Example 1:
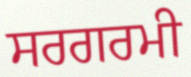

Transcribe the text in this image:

ਸਰਗਰਮੀ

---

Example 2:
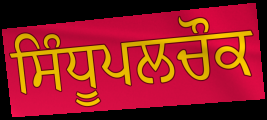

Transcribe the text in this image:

ਸਿੰਧੂਪਲਚੌਕ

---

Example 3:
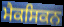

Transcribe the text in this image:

ਮੈਕਸਿਕਨ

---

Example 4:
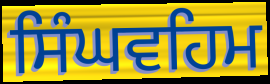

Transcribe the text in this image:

ਸਿੰਘਵਹਿਮ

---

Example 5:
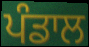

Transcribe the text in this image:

ਪੰਡਾਲ